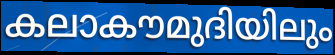
കലാകൗമുദിയിലും